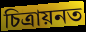
চিত্ৰায়নত